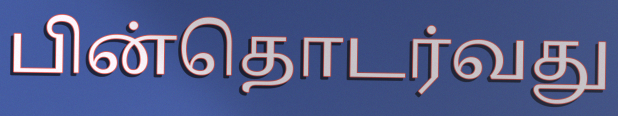
பின்தொடர்வது